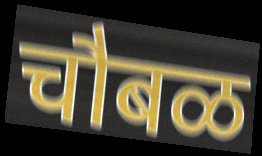
चौबळ